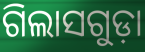
ଗିଲାସଗୁଡ଼ା